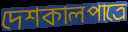
দেশকালপাত্রে